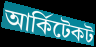
আর্কিটেকট